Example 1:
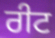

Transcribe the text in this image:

ਰੀਟ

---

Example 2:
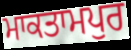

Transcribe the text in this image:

ਮਾਕਤਾਮਪੁਰ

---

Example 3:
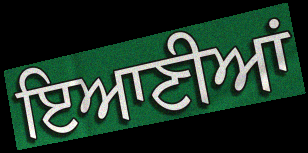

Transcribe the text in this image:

ਇਆਣੀਆਂ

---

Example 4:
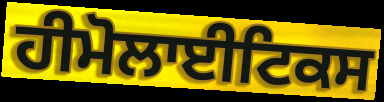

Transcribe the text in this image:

ਹੀਮੋਲਾਈਟਿਕਸ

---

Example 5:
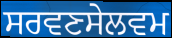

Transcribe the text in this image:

ਸਰਵਣਸੇਲਵਮ